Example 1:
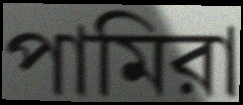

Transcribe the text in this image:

পামিরা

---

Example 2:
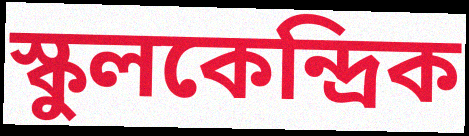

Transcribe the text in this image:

স্কুলকেন্দ্রিক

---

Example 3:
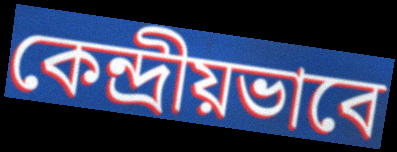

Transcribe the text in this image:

কেন্দ্রীয়ভাবে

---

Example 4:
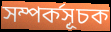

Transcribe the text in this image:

সম্পর্কসূচক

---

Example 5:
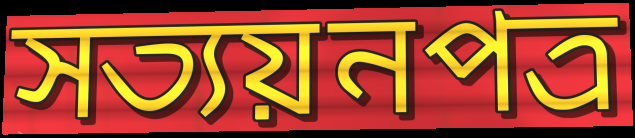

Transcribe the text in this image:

সত্যয়নপত্র